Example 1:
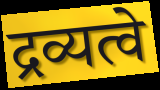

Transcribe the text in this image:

द्रव्यत्वे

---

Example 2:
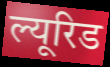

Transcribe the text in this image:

ल्यूरिड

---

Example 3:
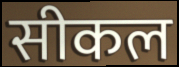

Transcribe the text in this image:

सीकल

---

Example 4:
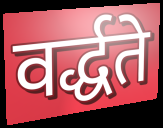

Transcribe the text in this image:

वर्द्धते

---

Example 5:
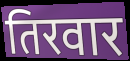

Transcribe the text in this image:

तिरवार